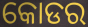
କୋଡର